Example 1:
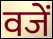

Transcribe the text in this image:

वजें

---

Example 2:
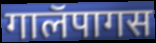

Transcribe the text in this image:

गालॅपागस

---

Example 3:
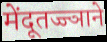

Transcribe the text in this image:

मेंदूतज्ज्ञाने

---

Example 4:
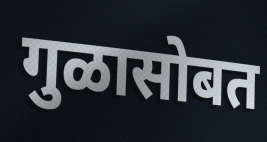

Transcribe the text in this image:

गुळासोबत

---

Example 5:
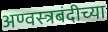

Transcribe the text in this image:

अण्वस्त्रबंदीच्या